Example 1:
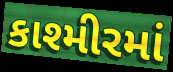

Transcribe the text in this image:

કાશ્મીરમાં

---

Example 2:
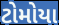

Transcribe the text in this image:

ટોમોયા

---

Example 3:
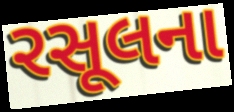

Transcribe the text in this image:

રસૂલના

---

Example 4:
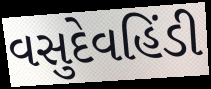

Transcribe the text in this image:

વસુદેવહિંડી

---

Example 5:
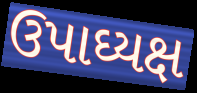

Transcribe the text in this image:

ઉપાઘ્યક્ષ